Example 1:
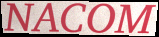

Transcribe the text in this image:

NACOM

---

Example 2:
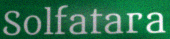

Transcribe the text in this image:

Solfatara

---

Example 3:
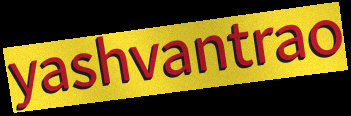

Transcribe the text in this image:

yashvantrao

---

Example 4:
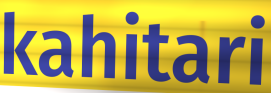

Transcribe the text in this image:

kahitari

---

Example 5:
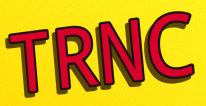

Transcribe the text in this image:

TRNC